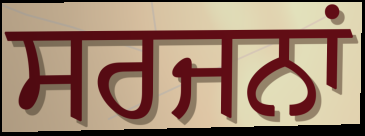
ਸਰਜਨਾਂ